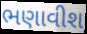
ભણાવીશ